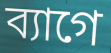
ব্যাগে